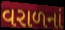
વરાળનાં